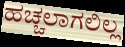
ಹಚ್ಚಲಾಗಲಿಲ್ಲ